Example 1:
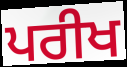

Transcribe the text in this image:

ਪਰੀਖ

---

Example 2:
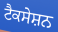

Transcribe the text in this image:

ਟੈਕਸੇਸ਼ਨ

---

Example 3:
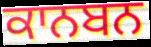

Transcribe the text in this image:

ਕਾਨਬਨ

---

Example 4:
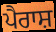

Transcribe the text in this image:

ਪੈਰਾਸ਼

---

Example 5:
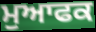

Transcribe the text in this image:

ਮੁਆਫਕ